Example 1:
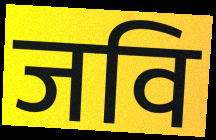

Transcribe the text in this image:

जवि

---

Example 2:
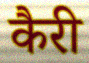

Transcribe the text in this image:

कैरी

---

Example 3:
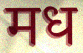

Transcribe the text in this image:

मध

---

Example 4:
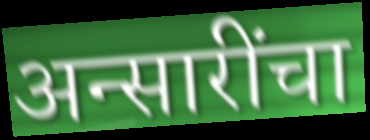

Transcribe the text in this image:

अन्सारींचा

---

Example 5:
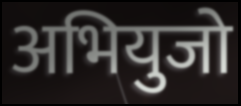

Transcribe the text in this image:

अभियुजो